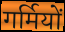
गर्मियों